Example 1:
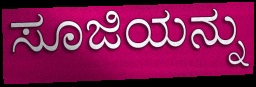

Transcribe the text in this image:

ಸೂಜಿಯನ್ನು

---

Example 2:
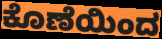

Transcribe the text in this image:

ಕೊಣೆಯಿಂದ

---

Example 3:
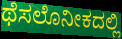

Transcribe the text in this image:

ಥೆಸಲೊನೀಕದಲ್ಲಿ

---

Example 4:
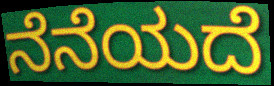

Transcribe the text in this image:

ನೆನೆಯದೆ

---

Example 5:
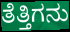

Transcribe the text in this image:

ತೆತ್ತಿಗನು